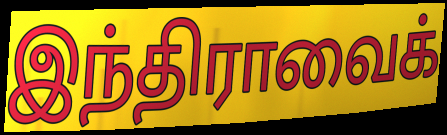
இந்திராவைக்